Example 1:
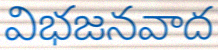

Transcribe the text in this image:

విభజనవాద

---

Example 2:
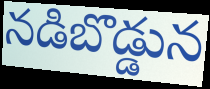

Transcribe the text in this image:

నడిబొడ్డున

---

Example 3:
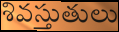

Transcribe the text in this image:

శివస్తుతులు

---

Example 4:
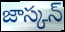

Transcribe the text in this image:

జాస్కన్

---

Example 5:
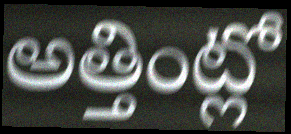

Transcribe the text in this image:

అత్తింట్లో